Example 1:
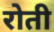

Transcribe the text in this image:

रोती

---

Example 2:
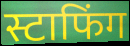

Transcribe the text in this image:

स्टाफिंग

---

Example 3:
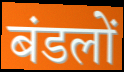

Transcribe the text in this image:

बंडलों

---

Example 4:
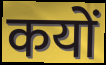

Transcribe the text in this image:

कयों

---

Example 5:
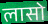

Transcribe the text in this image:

लासो